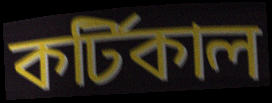
কর্টিকাল